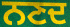
ਨਣਦ